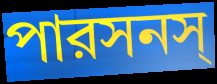
পারসনস্